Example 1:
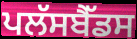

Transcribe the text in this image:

ਪਲੱਸਬੈੱਡਸ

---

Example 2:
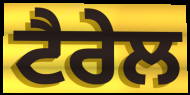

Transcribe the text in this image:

ਟੈਰੇਲ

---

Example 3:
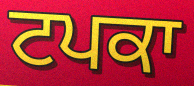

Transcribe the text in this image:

ਟਪਕਾ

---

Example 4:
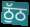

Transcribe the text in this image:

ਠੁੱਠ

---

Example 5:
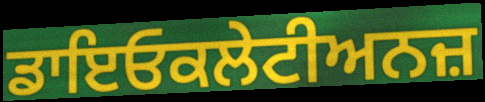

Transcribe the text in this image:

ਡਾਇਓਕਲੇਟੀਅਨਜ਼